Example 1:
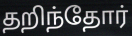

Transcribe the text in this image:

தறிந்தோர்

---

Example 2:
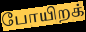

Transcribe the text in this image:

போயிறக்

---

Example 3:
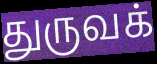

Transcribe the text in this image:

துருவக்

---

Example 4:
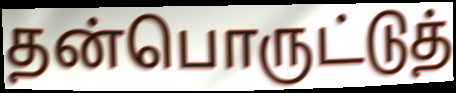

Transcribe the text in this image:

தன்பொருட்டுத்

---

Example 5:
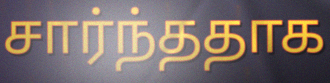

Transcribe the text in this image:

சார்ந்ததாக